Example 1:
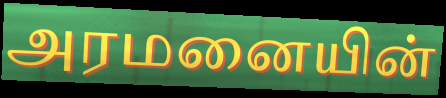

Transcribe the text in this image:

அரமனையின்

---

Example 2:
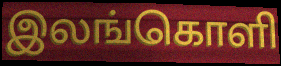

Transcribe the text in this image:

இலங்கொளி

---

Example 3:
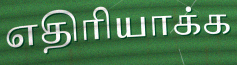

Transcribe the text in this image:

எதிரியாக்க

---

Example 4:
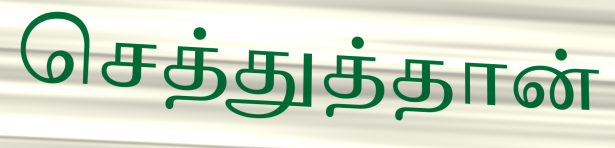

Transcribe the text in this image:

செத்துத்தான்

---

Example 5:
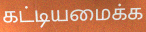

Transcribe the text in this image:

கட்டியமைக்க